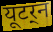
यूटर्न